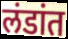
लंडांत